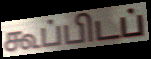
கூப்பிடப்